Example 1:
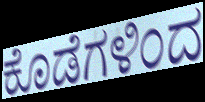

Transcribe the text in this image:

ಕೊಡೆಗಳಿಂದ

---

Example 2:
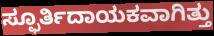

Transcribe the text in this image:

ಸ್ಫೂರ್ತಿದಾಯಕವಾಗಿತ್ತು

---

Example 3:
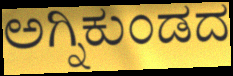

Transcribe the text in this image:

ಅಗ್ನಿಕುಂಡದ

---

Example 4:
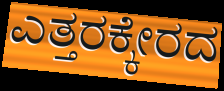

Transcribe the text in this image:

ಎತ್ತರಕ್ಕೇರದ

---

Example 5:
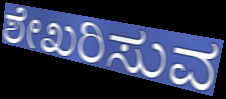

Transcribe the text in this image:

ಶೇಖರಿಸುವ